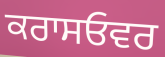
ਕਰਾਸਓਵਰ